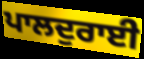
ਪਾਲਦੁਰਾਈ